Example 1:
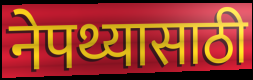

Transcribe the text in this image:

नेपथ्यासाठी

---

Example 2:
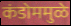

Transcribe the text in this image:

कंडोममुळे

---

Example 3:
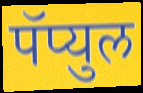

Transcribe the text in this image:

पॅप्युल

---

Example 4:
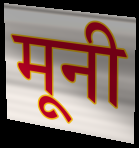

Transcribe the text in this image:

मूनी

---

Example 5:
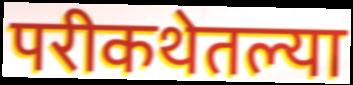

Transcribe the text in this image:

परीकथेतल्या